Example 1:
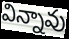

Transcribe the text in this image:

విన్నావు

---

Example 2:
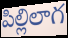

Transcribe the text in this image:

పిల్లిలాగ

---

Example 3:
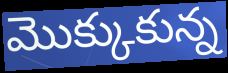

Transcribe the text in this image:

మొక్కుకున్న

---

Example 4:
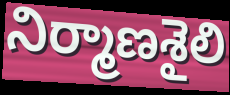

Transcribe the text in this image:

నిర్మాణశైలి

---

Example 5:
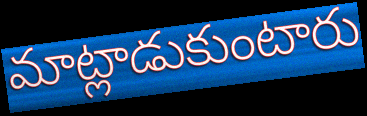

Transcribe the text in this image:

మాట్లాడుకుంటారు